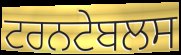
ਟਰਨਟੇਬਲਸ